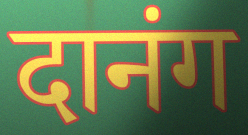
दानंग